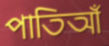
পাতিআঁ